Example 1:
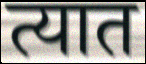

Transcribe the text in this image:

त्यात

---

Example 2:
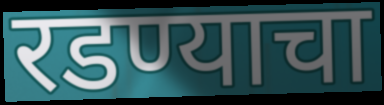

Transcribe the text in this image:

रडण्याचा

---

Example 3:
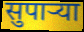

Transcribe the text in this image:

सुपार्‍या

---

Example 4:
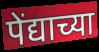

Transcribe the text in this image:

पेंद्याच्या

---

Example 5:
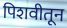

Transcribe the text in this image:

पिशवीतून